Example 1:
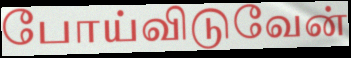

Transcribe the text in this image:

போய்விடுவேன்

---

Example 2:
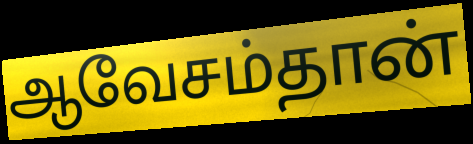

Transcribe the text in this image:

ஆவேசம்தான்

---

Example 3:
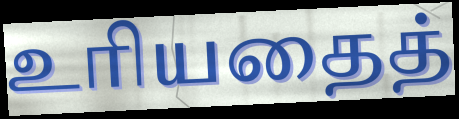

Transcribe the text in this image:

உரியதைத்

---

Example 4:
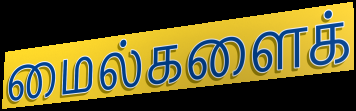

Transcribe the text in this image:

மைல்களைக்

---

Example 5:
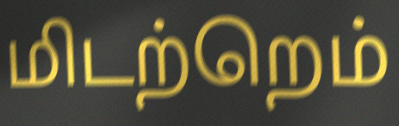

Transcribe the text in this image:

மிடற்றெம்